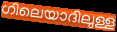
ഗിലെയാദിലുള്ള